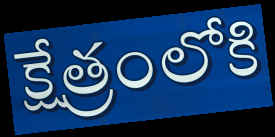
క్షేత్రంలోకి